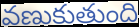
వణుకుతుంది